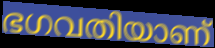
ഭഗവതിയാണ്